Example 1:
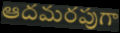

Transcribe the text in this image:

ఆదమరపుగా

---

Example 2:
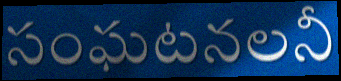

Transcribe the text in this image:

సంఘటనలనీ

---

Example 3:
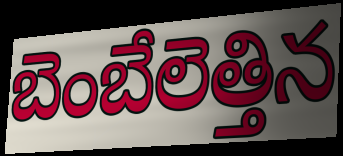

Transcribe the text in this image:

బెంబేలెత్తిన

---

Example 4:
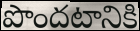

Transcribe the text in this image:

పొందటానికి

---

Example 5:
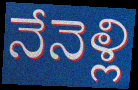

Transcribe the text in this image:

నేనెళ్లి